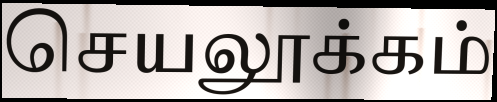
செயலூக்கம்